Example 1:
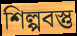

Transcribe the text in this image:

শিল্পবস্তু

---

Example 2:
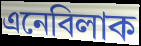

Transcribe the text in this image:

এনেবিলাক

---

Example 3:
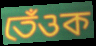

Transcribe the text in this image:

তেঁওক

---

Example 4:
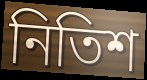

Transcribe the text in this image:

নিতিশ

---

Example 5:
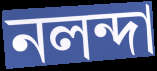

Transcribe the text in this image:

নলন্দা